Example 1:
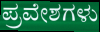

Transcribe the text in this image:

ಪ್ರವೇಶಗಳು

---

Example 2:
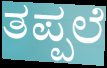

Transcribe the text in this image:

ತಪ್ಪಲೆ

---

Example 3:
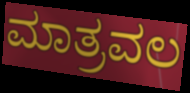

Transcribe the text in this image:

ಮಾತ್ರವಲ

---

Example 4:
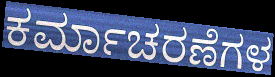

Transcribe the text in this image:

ಕರ್ಮಾಚರಣೆಗಳ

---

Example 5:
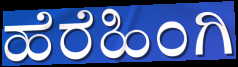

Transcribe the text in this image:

ಹೆರೆಹಿಂಗಿ